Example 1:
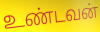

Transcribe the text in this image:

உண்டவன்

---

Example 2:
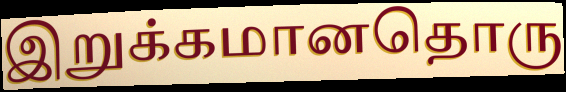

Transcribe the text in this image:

இறுக்கமானதொரு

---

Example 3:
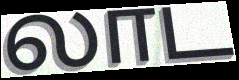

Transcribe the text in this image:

லாட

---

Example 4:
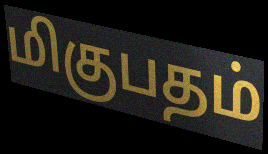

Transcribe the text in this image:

மிகுபதம்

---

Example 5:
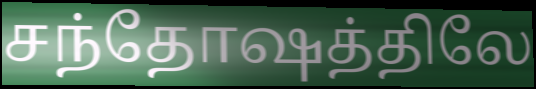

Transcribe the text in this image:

சந்தோஷத்திலே